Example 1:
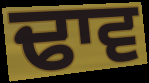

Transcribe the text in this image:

ਢਾਵ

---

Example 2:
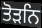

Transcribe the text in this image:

ਤੋੜਨਿ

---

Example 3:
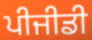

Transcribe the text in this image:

ਪੀਜੀਡੀ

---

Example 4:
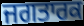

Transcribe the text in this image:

ਜਗਤਾਰਕ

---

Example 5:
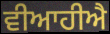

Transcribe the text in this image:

ਵੀਆਹੀਐ